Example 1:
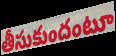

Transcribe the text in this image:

తీసుకుందంటూ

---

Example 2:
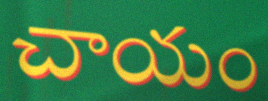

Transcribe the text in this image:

చాయం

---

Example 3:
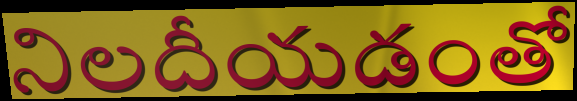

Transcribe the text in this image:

నిలదీయడంతో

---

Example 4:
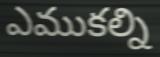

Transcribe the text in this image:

ఎముకల్ని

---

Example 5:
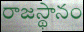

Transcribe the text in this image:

రాజస్థానం